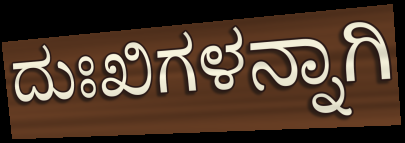
ದುಃಖಿಗಳನ್ನಾಗಿ